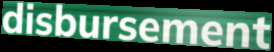
disbursement